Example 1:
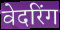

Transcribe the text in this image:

वेदरिंग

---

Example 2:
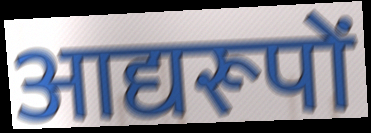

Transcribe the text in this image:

आद्यरूपों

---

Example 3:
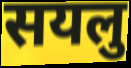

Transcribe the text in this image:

सयलु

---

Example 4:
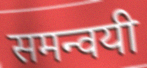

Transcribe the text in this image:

समन्वयी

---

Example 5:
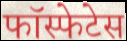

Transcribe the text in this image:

फॉस्फेटेस